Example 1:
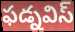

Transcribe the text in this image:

ఫడ్నవిస్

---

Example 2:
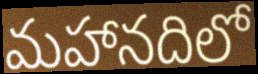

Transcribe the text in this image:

మహానదిలో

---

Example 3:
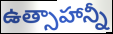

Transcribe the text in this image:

ఉత్సాహాన్నీ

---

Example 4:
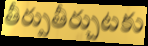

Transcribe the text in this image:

తీర్పుతీర్చుటకు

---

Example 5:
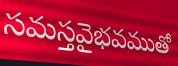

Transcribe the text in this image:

సమస్తవైభవముతో